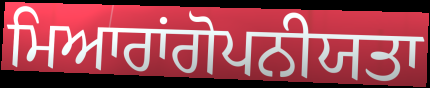
ਮਿਆਰਾਂਗੋਪਨੀਯਤਾ